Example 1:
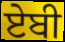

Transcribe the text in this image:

ਏਬੀ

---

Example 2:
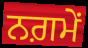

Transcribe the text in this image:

ਨਗ਼ਮੇਂ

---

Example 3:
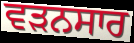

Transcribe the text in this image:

ਵੜਨਸਾਰ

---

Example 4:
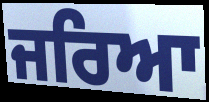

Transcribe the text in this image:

ਜਰਿਆ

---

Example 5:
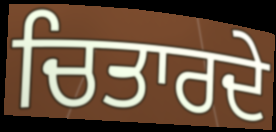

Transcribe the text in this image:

ਚਿਤਾਰਦੇ